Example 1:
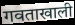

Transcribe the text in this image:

गवताखाली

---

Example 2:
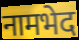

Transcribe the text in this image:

नामभेद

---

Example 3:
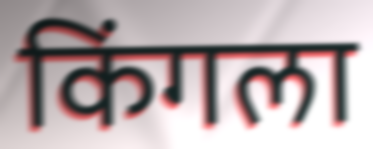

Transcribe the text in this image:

किंगला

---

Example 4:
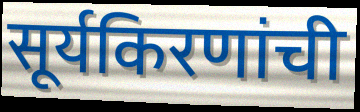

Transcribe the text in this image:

सूर्यकिरणांची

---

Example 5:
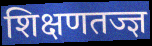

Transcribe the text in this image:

शिक्षणतज्ज्ञ